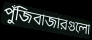
পুঁজিবাজারগুলো